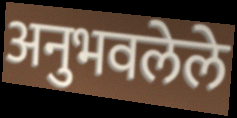
अनुभवलेले